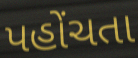
પહોંચતા